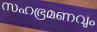
സഹഭ്രമണവും